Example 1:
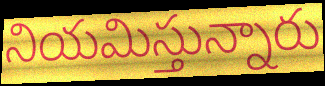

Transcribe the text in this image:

నియమిస్తున్నారు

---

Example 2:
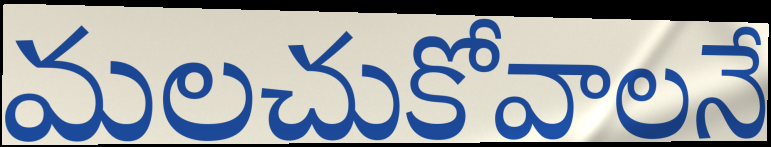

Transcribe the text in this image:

మలచుకోవాలనే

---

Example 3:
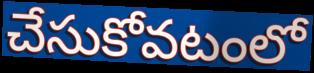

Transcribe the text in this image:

చేసుకోవటంలో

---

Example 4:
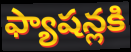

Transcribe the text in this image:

ఫ్యాషన్లకి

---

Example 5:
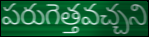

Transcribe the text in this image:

పరుగెత్తవచ్చని